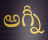
అగ్నీ